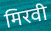
मिरवी